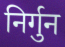
निर्गुन